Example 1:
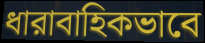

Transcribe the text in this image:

ধারাবাহিকভাবে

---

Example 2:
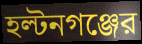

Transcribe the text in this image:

হল্টনগঞ্জের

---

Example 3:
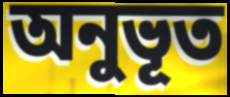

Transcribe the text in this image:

অনুভূত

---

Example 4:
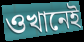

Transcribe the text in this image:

ওখানেই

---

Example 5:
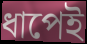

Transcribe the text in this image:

ধাপেই